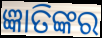
ଜ୍ଞାତିଙ୍କର